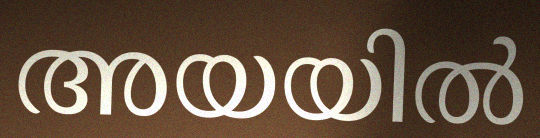
അയയിൽ